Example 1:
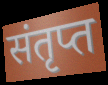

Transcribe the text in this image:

संतृप्त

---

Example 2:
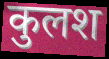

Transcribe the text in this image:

कुलश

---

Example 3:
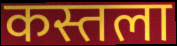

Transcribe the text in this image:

कस्तला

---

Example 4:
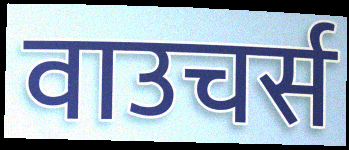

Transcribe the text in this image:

वाउचर्स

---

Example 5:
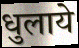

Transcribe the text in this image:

धुलाये